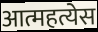
आत्महत्येस